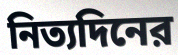
নিত্যদিনের